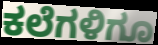
ಕಲೆಗಳಿಗೂ